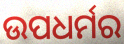
ଉପଧର୍ମର